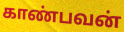
காண்பவன்